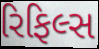
રિફિલ્સ